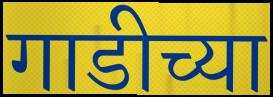
गाडीच्या